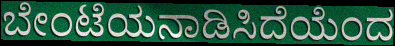
ಬೇಂಟೆಯನಾಡಿಸಿದೆಯೆಂದ